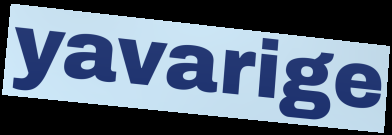
yavarige